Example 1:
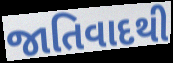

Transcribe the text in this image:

જાતિવાદથી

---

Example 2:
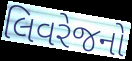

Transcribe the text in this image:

લિવરેજનો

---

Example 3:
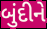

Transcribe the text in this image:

બુંદીને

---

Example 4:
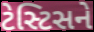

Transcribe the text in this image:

ટેસ્ટિસને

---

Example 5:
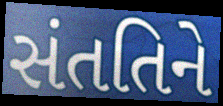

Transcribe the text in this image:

સંતતિને